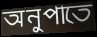
অনুপাতে